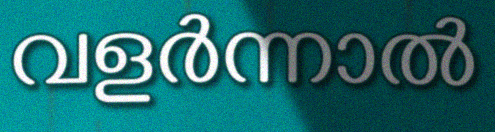
വളർന്നാൽ